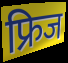
फ्रिज